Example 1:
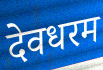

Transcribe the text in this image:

देवधरम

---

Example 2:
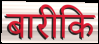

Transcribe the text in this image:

बारीकि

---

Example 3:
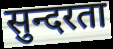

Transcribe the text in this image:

सुन्दरता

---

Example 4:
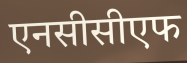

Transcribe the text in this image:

एनसीसीएफ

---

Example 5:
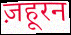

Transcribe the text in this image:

ज़हूरन